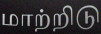
மாற்றிடு